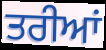
ਤਰੀਆਂ